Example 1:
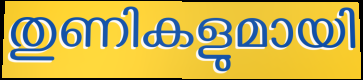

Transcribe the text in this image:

തുണികളുമായി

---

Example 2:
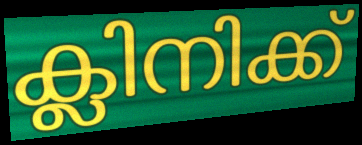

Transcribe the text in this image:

ക്ലിനിക്ക്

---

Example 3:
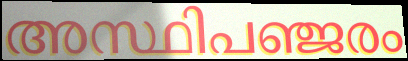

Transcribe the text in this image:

അസ്ഥിപഞ്ജരം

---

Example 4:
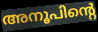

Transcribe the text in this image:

അനൂപിന്റെ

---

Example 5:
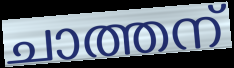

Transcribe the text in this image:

ചാത്തന്